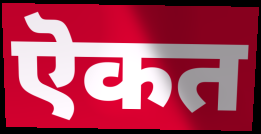
ऎकत